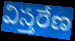
విస్తరేణ